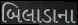
બિલાડાના